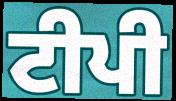
ਟੀਪੀ